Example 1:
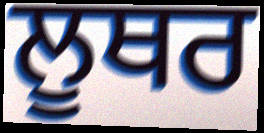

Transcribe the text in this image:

ਲੂਥਰ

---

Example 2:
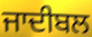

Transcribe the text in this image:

ਜਾਦੀਬਲ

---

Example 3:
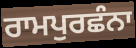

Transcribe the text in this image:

ਰਾਮਪੁਰਛੰਨਾ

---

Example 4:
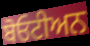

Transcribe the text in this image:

ਬੋਓਟੀਅਨ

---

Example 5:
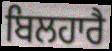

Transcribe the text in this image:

ਬਿਲਹਾਰੈ